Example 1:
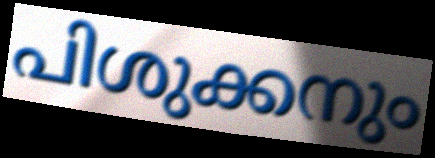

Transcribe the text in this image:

പിശുക്കനും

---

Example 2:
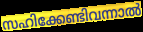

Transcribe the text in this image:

സഹിക്കേണ്ടിവന്നാൽ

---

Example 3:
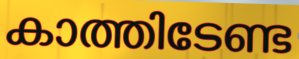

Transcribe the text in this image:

കാത്തിടേണ്ട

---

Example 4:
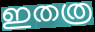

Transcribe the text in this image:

ഇതത്ര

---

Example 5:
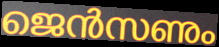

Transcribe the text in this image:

ജെൻസണും